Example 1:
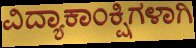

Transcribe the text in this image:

ವಿದ್ಯಾಕಾಂಕ್ಷಿಗಳಾಗಿ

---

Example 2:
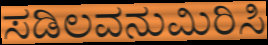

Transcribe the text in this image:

ಸಡಿಲವನುಮಿರಿಸಿ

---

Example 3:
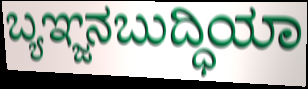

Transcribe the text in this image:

ಬ್ಯಞ್ಜನಬುದ್ಧಿಯಾ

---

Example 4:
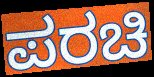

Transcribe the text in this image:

ಪರಚಿ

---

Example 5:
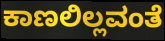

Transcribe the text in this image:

ಕಾಣಲಿಲ್ಲವಂತೆ